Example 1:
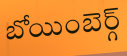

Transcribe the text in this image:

బోయింబెర్గ్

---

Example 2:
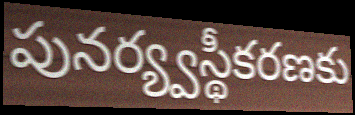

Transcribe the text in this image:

పునర్య్వస్థీకరణకు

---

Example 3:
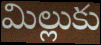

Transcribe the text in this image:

మిల్లుకు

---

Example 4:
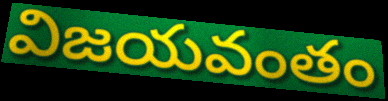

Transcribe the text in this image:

విజయవంతం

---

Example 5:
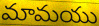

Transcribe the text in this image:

మామయు